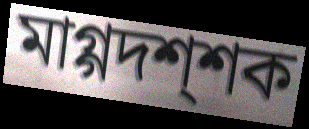
মাগ্গদশ্শক